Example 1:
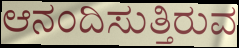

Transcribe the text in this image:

ಆನಂದಿಸುತ್ತಿರುವ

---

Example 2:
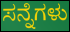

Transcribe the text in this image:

ಸನ್ನೆಗಳು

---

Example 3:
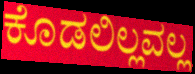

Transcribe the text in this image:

ಕೊಡಲಿಲ್ಲವಲ್ಲ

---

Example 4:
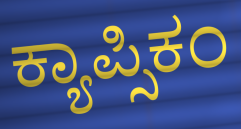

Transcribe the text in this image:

ಕ್ಯಾಪ್ಸಿಕಂ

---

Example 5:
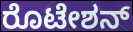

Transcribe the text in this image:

ರೊಟೇಶನ್